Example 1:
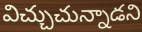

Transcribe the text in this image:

విచ్చుచున్నాడని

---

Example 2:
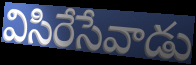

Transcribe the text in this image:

విసిరేసేవాడు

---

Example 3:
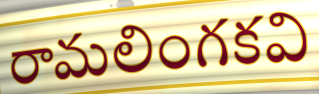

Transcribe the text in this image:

రామలింగకవి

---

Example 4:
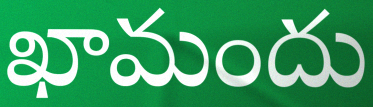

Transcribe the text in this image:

ఖామందు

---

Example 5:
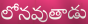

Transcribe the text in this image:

లోనవుతాడు